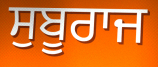
ਸੁਬੂਰਾਜ